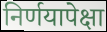
निर्णयापेक्षा